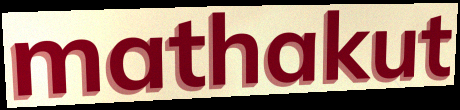
mathakut